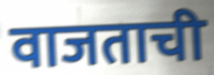
वाजताची